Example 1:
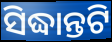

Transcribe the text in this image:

ସିଦ୍ଧାନ୍ତଟି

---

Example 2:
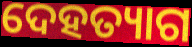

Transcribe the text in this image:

ଦେହତ୍ୟାଗ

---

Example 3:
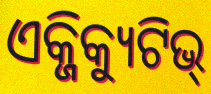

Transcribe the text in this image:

ଏକ୍ଜିକ୍ୟୁଟିଭ୍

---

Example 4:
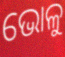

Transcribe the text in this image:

ଭୋଳୁ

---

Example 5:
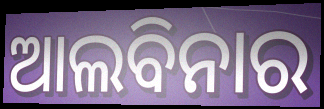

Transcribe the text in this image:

ଆଲବିନାର